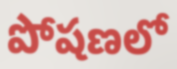
పోషణలో